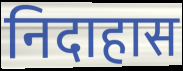
निदाहास